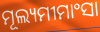
ମୂଲ୍ୟମୀମାଂସା